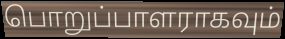
பொறுப்பாளராகவும்